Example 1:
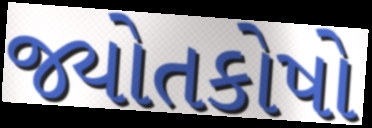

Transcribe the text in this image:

જ્યોતકોષો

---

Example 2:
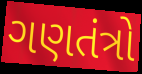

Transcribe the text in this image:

ગણતંત્રો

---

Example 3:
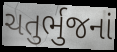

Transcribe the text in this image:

ચતુર્ભુજનાં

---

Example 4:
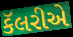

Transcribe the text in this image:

કૅલરીએ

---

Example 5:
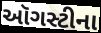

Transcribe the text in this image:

ઑગસ્ટીના